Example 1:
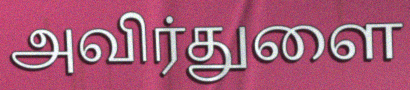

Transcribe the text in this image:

அவிர்துளை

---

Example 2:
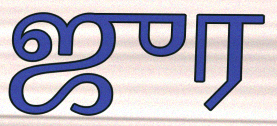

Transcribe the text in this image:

ஜுர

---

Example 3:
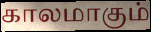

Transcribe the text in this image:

காலமாகும்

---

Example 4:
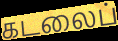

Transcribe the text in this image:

கடலைப்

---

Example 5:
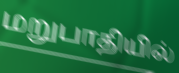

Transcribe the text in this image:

மறுபாதியில்